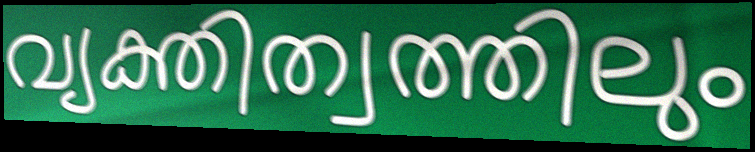
വ്യക്തിത്വത്തിലും